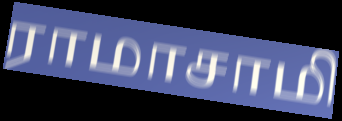
ராமாசாமி